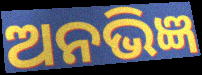
ଅନଭିଜ୍ଞ